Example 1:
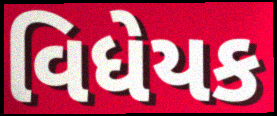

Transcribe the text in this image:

વિધેયક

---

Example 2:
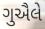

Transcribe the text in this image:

ગુઐલે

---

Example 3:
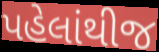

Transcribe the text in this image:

પહેલાંથીજ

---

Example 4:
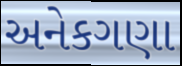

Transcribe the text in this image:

અનેકગણા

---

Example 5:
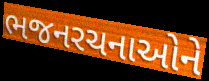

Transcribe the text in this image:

ભજનરચનાઓને